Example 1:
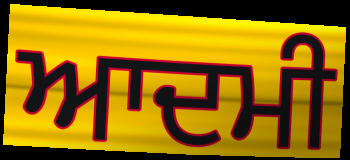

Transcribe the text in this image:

ਆਦਮੀ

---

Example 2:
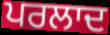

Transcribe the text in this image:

ਪਰਲਾਦ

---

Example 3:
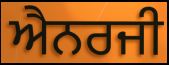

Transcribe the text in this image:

ਐਨਰਜੀ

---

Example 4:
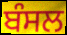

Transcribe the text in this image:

ਬੰਸਲ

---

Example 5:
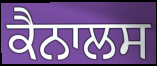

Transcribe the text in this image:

ਕੈਨਾਲਸ